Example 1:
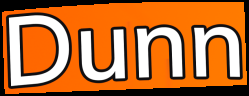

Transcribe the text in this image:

Dunn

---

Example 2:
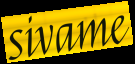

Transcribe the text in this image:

sivame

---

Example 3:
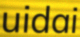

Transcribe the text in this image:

uidai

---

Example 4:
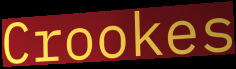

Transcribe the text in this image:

Crookes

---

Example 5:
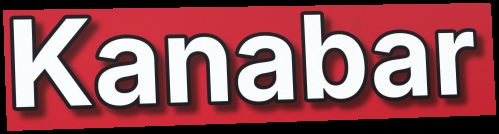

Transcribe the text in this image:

Kanabar